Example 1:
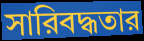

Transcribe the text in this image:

সারিবদ্ধতার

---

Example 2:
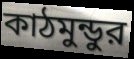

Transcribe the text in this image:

কাঠমুন্ডুর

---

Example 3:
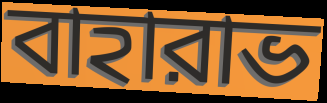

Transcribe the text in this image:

বাহারাভ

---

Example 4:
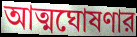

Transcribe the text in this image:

আত্মঘোষণার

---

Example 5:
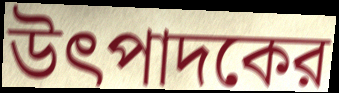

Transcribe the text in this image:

উৎপাদকের